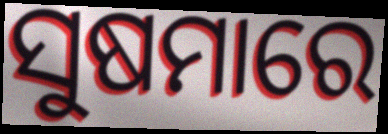
ସୁଷମାରେ